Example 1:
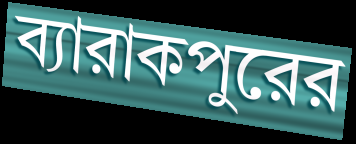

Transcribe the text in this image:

ব্যারাকপুরের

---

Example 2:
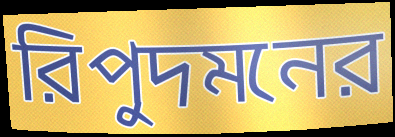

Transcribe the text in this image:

রিপুদমনের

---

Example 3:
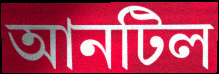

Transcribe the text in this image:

আনটিল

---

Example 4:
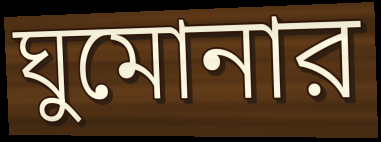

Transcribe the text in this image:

ঘুমোনার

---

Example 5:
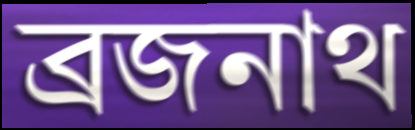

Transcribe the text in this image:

ব্রজনাথ